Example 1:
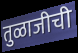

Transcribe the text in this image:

तुळाजीची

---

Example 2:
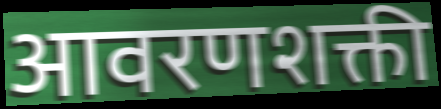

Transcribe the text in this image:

आवरणशक्ती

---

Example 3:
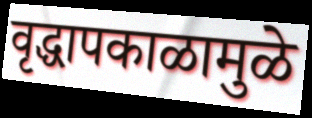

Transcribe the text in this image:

वृद्धापकाळामुळे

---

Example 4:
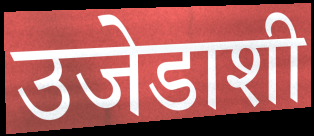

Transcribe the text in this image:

उजेडाशी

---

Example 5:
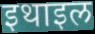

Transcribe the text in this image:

इथाइल